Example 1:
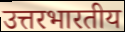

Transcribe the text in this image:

उत्तरभारतीय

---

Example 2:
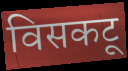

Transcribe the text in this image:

विसकटू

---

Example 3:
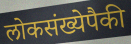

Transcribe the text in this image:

लोकसंख्येपैकी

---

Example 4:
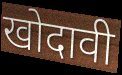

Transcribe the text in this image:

खोदावी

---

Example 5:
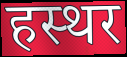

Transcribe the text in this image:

हस्थर